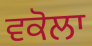
ਵਕੋਲਾ